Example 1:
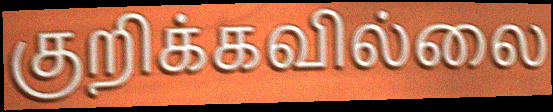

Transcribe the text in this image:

குறிக்கவில்லை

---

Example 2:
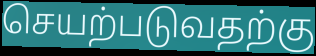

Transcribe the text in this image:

செயற்படுவதற்கு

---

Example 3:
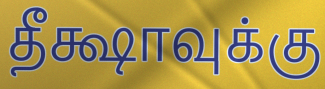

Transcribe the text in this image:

தீக்ஷாவுக்கு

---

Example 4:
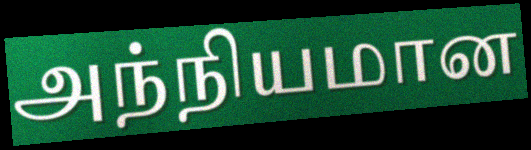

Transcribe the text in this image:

அந்நியமான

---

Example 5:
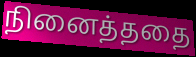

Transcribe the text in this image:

நினைத்ததை